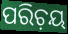
ପରିଚ଼ୟ